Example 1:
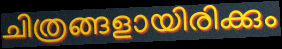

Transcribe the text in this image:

ചിത്രങ്ങളായിരിക്കും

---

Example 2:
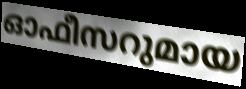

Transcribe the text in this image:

ഓഫീസറുമായ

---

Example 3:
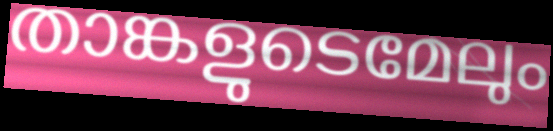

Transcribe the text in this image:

താങ്കളുടെമേലും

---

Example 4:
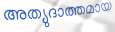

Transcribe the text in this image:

അത്യുദാത്തമായ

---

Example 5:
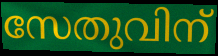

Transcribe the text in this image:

സേതുവിന്